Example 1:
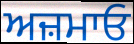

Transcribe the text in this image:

ਅਜ਼ਮਾਓ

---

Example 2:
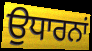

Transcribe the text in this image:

ਉਧਾਰਨਾਂ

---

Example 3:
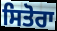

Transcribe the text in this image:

ਸਿਤੋਰਾ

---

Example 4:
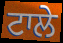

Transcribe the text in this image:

ਟਾਲੇ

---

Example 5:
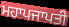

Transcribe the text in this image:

ਮਹਾਪਜਾਪਤੀ